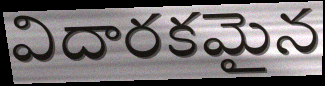
విదారకమైన